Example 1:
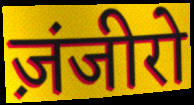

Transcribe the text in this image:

ज़ंजीरो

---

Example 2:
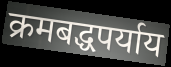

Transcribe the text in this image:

क्रमबद्धपर्याय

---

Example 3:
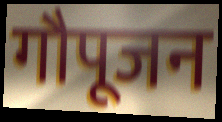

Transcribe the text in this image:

गौपूजन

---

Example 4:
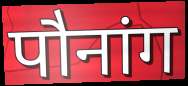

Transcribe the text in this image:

पौनांग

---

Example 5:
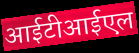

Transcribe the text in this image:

आईटीआईएल